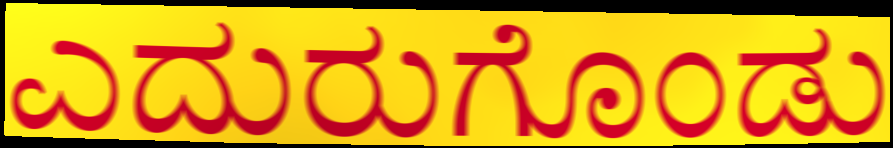
ಎದುರುಗೊಂಡು